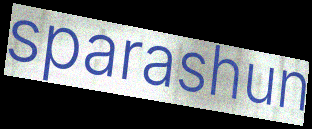
sparashun